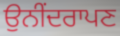
ਉਨੀਂਦਰਾਪਣ